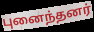
புனைந்தனர்